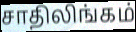
சாதிலிங்கம்